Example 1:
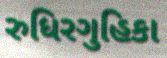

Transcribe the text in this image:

રુધિરગુહિકા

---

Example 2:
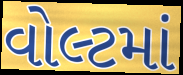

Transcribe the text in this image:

વોલ્ટમાં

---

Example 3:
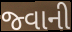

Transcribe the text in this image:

જ્વાની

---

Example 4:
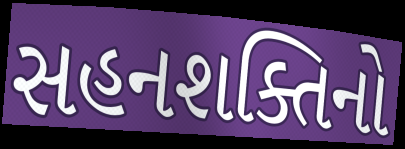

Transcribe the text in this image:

સહનશક્તિનો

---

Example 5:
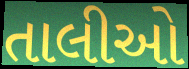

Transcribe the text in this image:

તાલીઓ